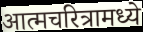
आत्मचरित्रामध्ये